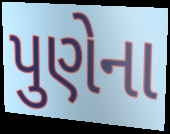
પુણેના